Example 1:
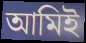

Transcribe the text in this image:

আমিই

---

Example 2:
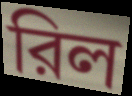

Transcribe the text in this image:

রিল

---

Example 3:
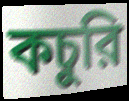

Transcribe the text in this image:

কচুরি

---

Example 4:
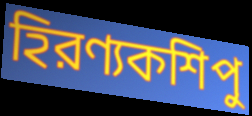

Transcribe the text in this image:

হিরণ্যকশিপু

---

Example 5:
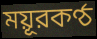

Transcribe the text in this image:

ময়ূরকণ্ঠ